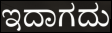
ಇದಾಗದು